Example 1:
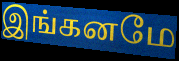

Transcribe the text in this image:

இங்கனமே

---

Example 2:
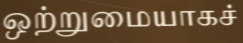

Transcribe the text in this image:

ஒற்றுமையாகச்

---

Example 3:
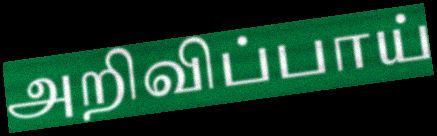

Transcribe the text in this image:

அறிவிப்பாய்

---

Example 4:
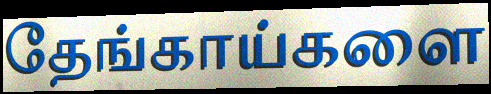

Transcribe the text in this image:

தேங்காய்களை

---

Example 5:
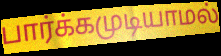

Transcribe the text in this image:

பார்க்கமுடியாமல்